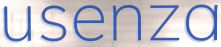
usenza